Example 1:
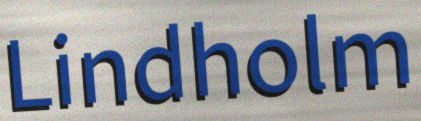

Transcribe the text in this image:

Lindholm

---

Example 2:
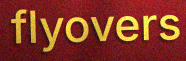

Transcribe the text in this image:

flyovers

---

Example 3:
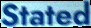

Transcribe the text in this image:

Stated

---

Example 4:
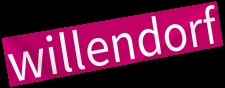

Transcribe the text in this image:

willendorf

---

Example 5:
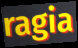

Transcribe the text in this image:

ragia